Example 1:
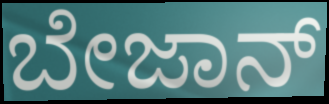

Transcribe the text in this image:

ಬೇಜಾನ್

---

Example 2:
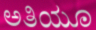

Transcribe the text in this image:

ಅತಿಯೂ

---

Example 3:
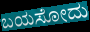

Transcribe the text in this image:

ಬಯಸೋದು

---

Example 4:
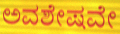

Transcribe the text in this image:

ಅವಶೇಷವೇ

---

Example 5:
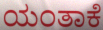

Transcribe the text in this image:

ಯಂತಾಕೆ